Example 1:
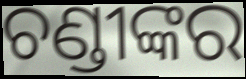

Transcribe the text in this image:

ଚଣ୍ଡୀଙ୍କର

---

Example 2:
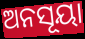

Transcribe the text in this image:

ଅନସୂୟା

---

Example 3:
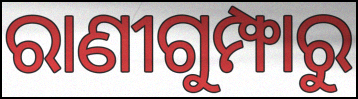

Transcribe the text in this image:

ରାଣୀଗୁମ୍ଫାରୁ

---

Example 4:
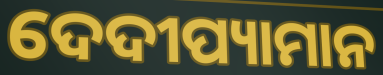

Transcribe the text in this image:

ଦେଦୀପ୍ୟାମାନ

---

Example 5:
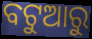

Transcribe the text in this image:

ବଟୁଆରୁ